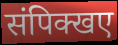
संपिक्खए